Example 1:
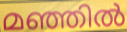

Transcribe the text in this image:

മഞ്ഞിൽ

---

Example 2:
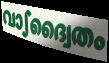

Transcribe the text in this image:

വാഽദ്വൈതം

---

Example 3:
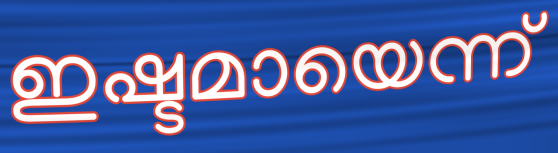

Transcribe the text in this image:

ഇഷ്ടമായെന്ന്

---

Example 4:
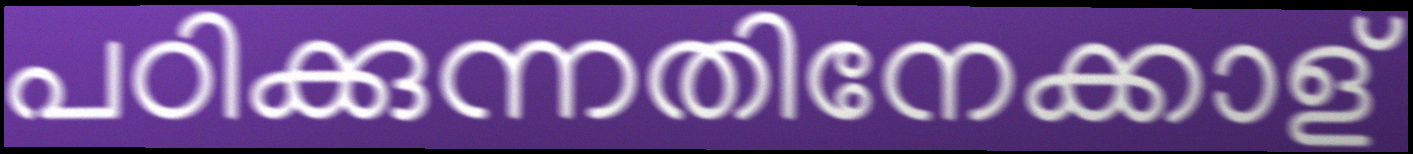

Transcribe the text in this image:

പഠിക്കുന്നതിനേക്കാള്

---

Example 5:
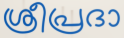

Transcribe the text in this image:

ശ്രീപ്രദാ